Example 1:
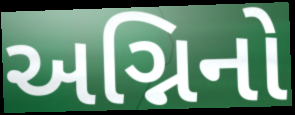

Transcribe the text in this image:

અગ્નિનો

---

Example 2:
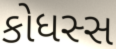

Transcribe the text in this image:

કોધસ્સ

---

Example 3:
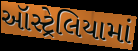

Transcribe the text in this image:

ઑસ્ટ્રેલિયામાં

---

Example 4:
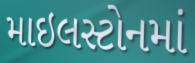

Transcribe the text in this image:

માઇલસ્ટોનમાં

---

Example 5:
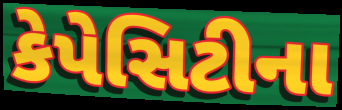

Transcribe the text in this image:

કેપેસિટીના